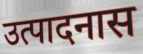
उत्पादनास